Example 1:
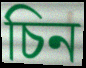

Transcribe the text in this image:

চিন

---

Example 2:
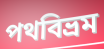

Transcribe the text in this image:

পথবিভ্রম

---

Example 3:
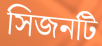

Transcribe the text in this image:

সিজনটি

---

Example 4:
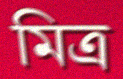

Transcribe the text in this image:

মিত্র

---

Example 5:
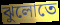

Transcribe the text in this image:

ঝুলোতে